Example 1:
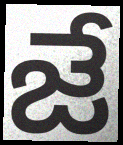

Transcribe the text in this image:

జే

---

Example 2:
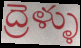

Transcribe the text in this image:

ద్రెళ్ళు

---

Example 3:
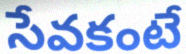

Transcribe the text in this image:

సేవకంటే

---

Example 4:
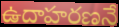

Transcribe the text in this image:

ఉదాహరణనే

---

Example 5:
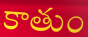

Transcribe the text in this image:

కాతుం